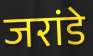
जरांडे